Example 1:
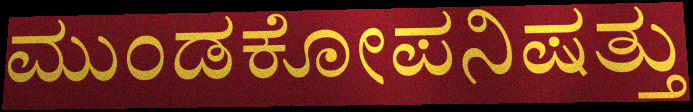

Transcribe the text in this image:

ಮುಂಡಕೋಪನಿಷತ್ತು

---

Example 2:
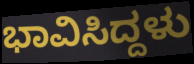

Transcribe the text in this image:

ಭಾವಿಸಿದ್ದಳು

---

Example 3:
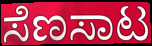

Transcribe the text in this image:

ಸೆಣಸಾಟ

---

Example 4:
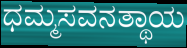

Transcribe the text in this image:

ಧಮ್ಮಸವನತ್ಥಾಯ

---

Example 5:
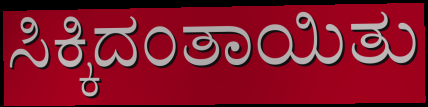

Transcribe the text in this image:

ಸಿಕ್ಕಿದಂತಾಯಿತು